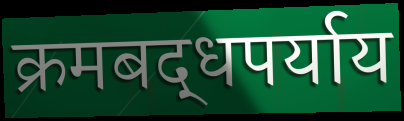
क्रमबद्धपर्याय